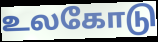
உலகோடு